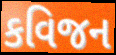
કવિજન